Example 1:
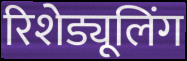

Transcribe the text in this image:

रिशेड्यूलिंग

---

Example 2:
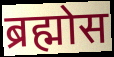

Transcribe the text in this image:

ब्रह्मोस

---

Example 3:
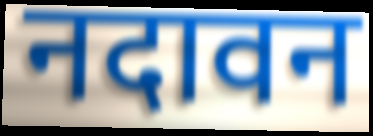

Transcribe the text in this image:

नदावन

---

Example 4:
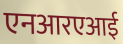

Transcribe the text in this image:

एनआरएआई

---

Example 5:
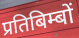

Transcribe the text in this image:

प्रतिबिम्बों